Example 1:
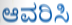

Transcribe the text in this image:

ಆವರಿಸಿ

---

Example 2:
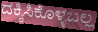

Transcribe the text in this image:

ದಕ್ಕಿಸಿಕೊಳ್ಳಬಲ್ಲ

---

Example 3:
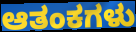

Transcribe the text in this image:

ಆತಂಕಗಳು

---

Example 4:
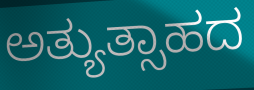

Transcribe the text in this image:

ಅತ್ಯುತ್ಸಾಹದ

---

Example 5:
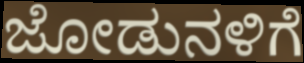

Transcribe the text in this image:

ಜೋಡುನಳಿಗೆ